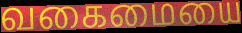
வகைமையை